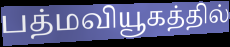
பத்மவியூகத்தில்